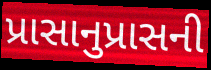
પ્રાસાનુપ્રાસની